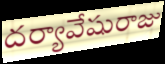
దర్యావేషురాజు